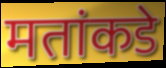
मतांकडे